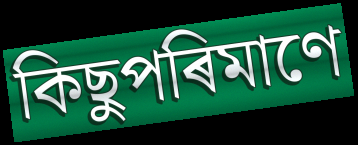
কিছুপৰিমাণে